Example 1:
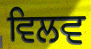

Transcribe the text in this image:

ਵਿਲਵ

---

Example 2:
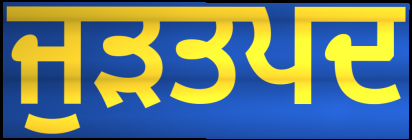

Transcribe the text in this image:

ਜੁੜਤਪਦ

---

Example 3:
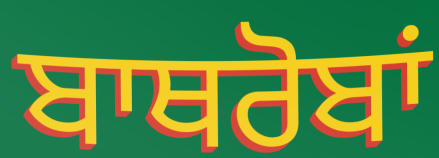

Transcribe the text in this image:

ਬਾਥਰੋਬਾਂ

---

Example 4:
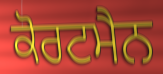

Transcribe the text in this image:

ਕੋਰਟਮੈਨ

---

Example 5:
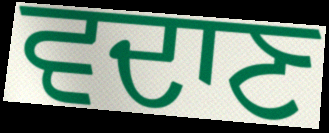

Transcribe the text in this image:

ਵਦਾਣ